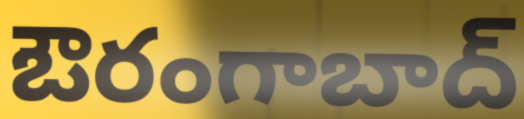
ఔరంగాబాద్